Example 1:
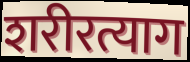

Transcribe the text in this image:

शरीरत्याग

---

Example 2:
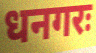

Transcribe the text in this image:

धनगरः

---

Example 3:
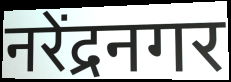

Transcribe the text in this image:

नरेंद्रनगर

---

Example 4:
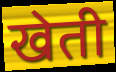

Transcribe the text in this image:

खेती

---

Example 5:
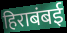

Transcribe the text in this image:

हिराबंबई